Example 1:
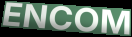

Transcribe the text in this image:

ENCOM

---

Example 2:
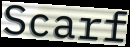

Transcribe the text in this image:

Scarf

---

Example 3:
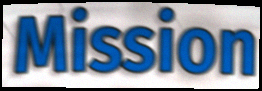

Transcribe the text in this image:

Mission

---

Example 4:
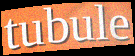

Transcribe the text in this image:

tubule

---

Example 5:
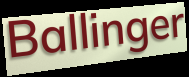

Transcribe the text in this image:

Ballinger